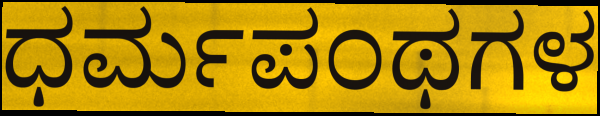
ಧರ್ಮಪಂಥಗಳ